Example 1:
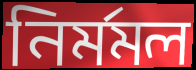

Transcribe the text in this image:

নির্মমল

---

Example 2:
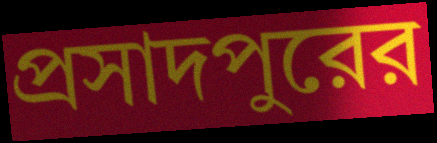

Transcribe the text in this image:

প্রসাদপুরের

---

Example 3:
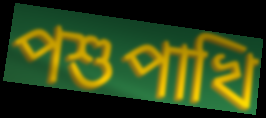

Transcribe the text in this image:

পশুপাখি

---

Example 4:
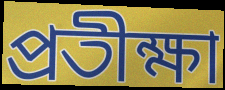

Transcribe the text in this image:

প্রতীক্ষা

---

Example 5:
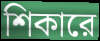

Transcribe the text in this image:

শিকারে